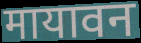
मायावन